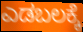
ಎಡಬಲಕ್ಕೆ